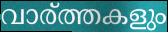
വാര്ത്തകളും